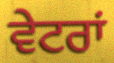
ਵੇਟਰਾਂ